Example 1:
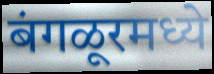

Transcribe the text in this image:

बंगळूरमध्ये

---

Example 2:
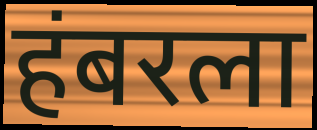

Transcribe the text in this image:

हंबरला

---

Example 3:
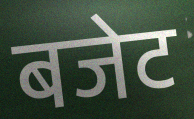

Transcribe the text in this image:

बजेट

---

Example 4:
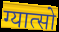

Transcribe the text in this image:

ग्यात्सो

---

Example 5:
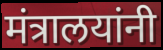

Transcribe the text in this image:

मंत्रालयांनी